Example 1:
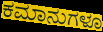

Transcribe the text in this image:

ಕಮಾನುಗಳೂ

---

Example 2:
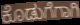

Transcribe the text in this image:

ಕೊಡುಗೆಗಾಗಿ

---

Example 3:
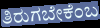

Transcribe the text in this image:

ತಿರುಗಬೇಕೆಂಬ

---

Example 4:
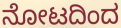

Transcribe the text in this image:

ನೋಟದಿಂದ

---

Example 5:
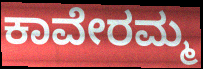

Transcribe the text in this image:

ಕಾವೇರಮ್ಮ